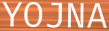
YOJNA